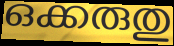
ഒക്കരുതു